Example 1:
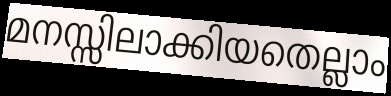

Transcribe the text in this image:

മനസ്സിലാക്കിയതെല്ലാം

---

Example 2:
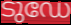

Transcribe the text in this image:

ടുഡേ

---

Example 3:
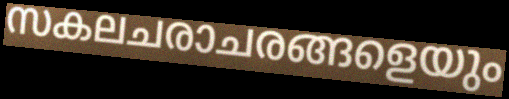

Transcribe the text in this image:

സകലചരാചരങ്ങളെയും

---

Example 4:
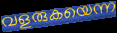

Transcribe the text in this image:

വളരുകയെന്ന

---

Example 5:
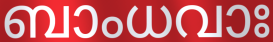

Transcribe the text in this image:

ബാംധവാഃ